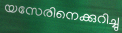
യസേരിനെക്കുറിച്ചു